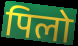
पिलो